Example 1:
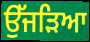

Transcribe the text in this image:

ਉੱਜੜਿਆ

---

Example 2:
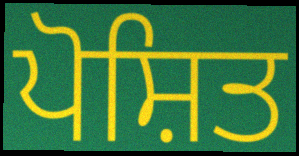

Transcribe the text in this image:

ਪੋਸ਼ਿਤ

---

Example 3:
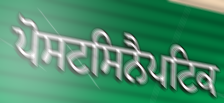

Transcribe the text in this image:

ਪੋਸਟਸਿਨੈਪਟਿਕ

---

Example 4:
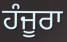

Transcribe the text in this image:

ਹੰਜੂਰਾ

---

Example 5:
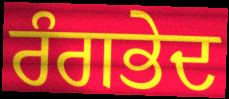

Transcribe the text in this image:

ਰੰਗਭੇਦ